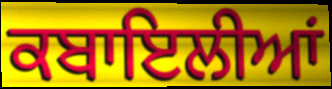
ਕਬਾਇਲੀਆਂ